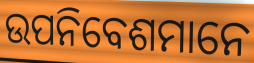
ଉପନିବେଶମାନେ